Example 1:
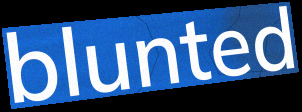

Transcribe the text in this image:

blunted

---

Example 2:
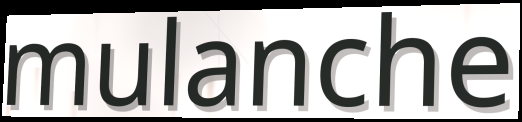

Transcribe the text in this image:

mulanche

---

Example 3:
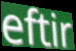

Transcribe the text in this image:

eftir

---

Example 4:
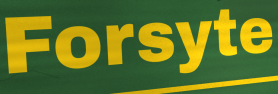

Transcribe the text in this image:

Forsyte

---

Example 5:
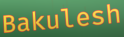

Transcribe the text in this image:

Bakulesh